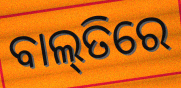
ବାଲ୍‌ତିରେ